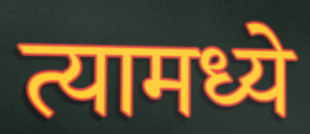
त्यामध्ये